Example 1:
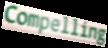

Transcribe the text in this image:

Compelling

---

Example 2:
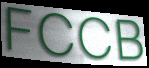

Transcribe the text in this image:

FCCB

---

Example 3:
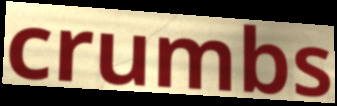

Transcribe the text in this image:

crumbs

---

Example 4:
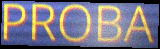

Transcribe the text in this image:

PROBA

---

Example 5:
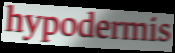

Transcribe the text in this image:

hypodermis